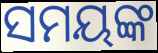
ସମୟଙ୍କ